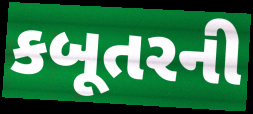
કબૂતરની